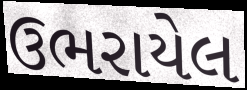
ઉભરાયેલ